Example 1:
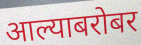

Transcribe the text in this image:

आल्याबरोबर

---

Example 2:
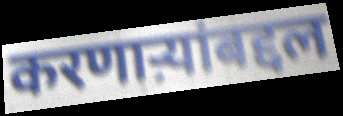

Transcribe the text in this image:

करणाऱ्‍यांबद्दल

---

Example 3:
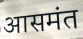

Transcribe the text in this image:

आसमंत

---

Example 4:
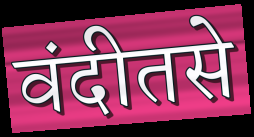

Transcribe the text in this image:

वंदीतसे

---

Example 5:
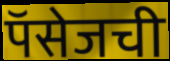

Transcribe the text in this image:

पॅसेजची